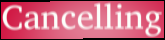
Cancelling